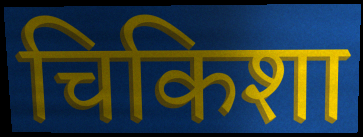
चिकिशा